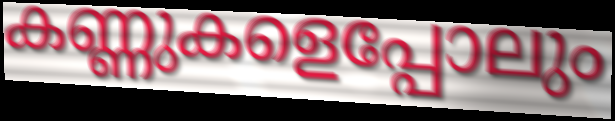
കണ്ണുകളെപ്പോലും